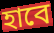
হাবে